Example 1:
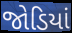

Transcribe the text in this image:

જોડિયાં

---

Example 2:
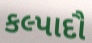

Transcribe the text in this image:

કલ્પાદૌ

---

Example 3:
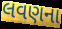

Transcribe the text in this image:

લવણના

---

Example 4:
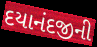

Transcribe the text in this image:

દયાનંદજીની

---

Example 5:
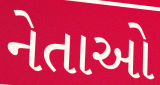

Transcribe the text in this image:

નેતાઓ